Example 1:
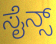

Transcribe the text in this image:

ಸೈನ್ಸ್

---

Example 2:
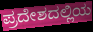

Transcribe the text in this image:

ಪ್ರದೇಶದಲ್ಲಿಯ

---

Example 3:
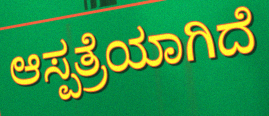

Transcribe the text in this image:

ಆಸ್ಪತ್ರೆಯಾಗಿದೆ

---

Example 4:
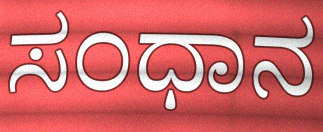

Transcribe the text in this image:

ಸಂಧಾನ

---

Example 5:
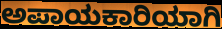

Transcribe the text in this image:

ಅಪಾಯಕಾರಿಯಾಗಿ